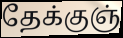
தேக்குஞ்